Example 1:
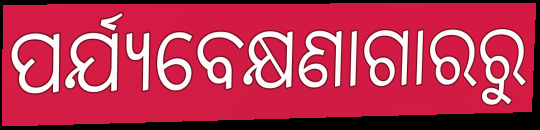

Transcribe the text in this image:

ପର୍ଯ୍ୟବେକ୍ଷଣାଗାରରୁ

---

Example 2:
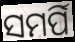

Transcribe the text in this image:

ସମର୍ପି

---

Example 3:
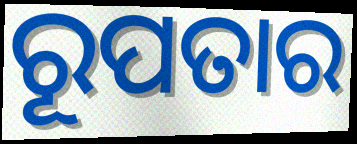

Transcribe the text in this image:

ରୂପତାର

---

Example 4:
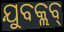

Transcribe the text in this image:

ଯୁବକ୍ଲବ୍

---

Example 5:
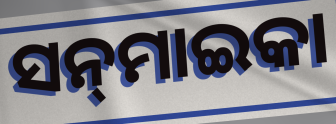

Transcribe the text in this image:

ସନ୍‌ମାଇକା